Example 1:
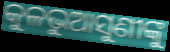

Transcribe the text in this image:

କୁଳଭୁଆସୁଣୀଙ୍କୁ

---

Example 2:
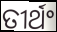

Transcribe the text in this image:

ତୀର୍ଥଂ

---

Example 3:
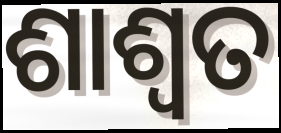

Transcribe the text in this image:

ଶାଶ୍ୱତ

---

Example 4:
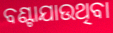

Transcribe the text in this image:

ବଣ୍ଟାଯାଉଥିବା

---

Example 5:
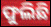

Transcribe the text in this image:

ଫୁଲିଛି